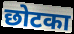
छोटका